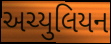
અચ્યુલિયન